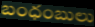
బంధంబులు